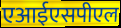
एआईएसपीएल